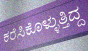
ಕರೆಸಿಕೊಳ್ಳುತ್ತಿದ್ದ